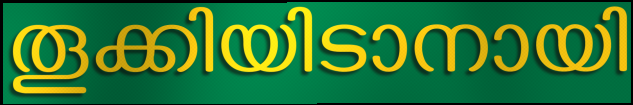
തൂക്കിയിടാനായി